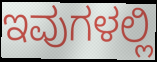
ಇವುಗಳಲ್ಲಿ